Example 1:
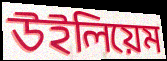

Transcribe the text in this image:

উইলিয়েম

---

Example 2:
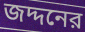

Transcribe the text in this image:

জদ্দনের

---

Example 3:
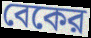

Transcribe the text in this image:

বেকের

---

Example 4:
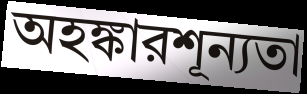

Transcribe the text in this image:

অহঙ্কারশূন্যতা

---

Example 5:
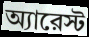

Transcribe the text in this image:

অ্যারেস্ট